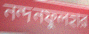
নন্দনফুলহার